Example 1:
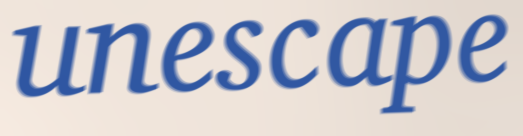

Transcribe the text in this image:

unescape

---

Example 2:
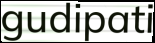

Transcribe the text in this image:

gudipati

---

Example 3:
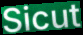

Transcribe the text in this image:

Sicut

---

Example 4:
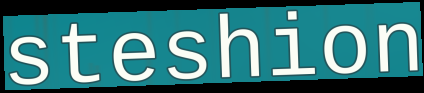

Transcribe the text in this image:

steshion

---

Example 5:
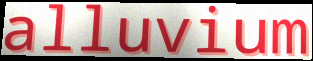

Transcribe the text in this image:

alluvium